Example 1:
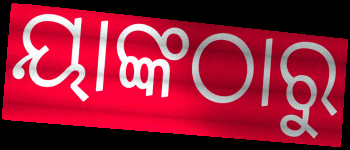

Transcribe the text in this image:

ୟାଙ୍କଠାରୁ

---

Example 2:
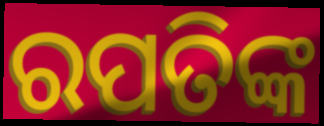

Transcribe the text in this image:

ରପତିଙ୍କ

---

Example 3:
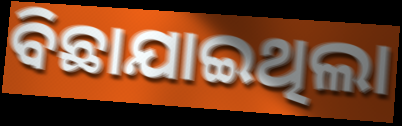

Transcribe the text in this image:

ବିଛାଯାଇଥିଲା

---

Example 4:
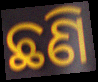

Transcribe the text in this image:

ଛଣି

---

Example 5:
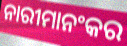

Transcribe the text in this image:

ନାରୀମାନଂକର